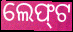
ଲେଫ୍‌ଟ